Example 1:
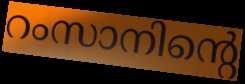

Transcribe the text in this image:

റംസാനിന്റെ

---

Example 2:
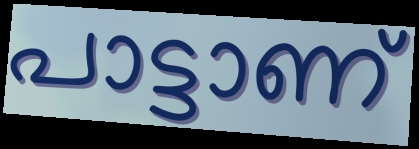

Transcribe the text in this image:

പാട്ടാണ്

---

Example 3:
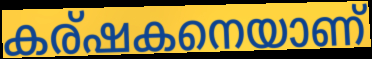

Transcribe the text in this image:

കര്ഷകനെയാണ്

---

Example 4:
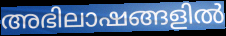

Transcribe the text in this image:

അഭിലാഷങ്ങളിൽ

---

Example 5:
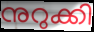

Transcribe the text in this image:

നുറുക്കി